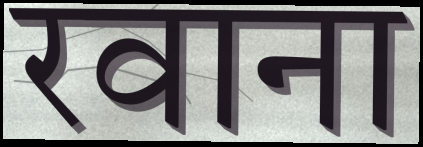
रवाना